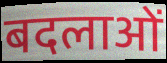
बदलाओं